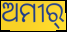
ଅମୀର୍